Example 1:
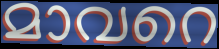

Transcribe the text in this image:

മാവറെ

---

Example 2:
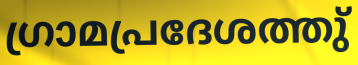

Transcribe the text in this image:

ഗ്രാമപ്രദേശത്തു്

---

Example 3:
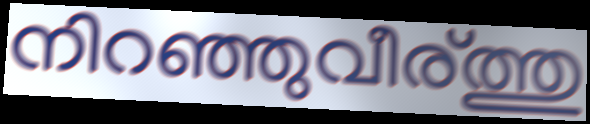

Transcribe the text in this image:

നിറഞ്ഞുവീര്ത്തു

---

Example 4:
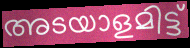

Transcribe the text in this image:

അടയാളമിട്ട്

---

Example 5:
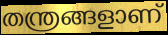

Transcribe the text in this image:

തന്ത്രങ്ങളാണ്